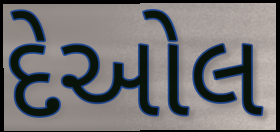
દેઓલ